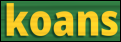
koans